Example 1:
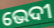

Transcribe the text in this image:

ଭେଦୀ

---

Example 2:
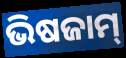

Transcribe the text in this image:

ଭିଷଜାମ୍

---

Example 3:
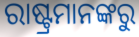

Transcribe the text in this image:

ରାଷ୍ଟ୍ରମାନଙ୍କରୁ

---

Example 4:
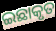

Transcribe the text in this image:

ଇଛାକୃତ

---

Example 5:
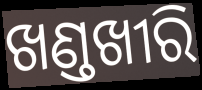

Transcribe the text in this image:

ଖଣ୍ଡଖୀରି